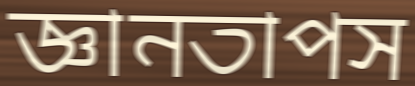
জ্ঞানতাপস